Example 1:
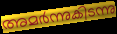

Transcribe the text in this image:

അമർന്നുകിടന്നു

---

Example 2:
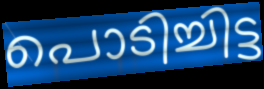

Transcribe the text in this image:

പൊടിച്ചിട്ട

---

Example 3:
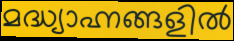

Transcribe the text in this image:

മദ്ധ്യാഹ്നങ്ങളിൽ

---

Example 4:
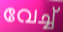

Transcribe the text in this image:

വേച്ച്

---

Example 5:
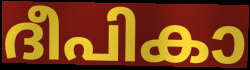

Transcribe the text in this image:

ദീപികാ